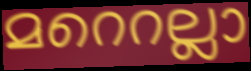
മറെറല്ലാ